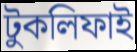
টুকলিফাই